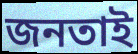
জনতাই